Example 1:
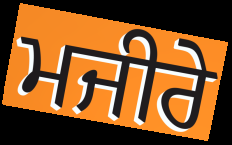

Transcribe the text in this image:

ਮਜੀਰੇ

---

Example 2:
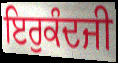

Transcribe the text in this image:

ਇਰੁਕੰਦਜੀ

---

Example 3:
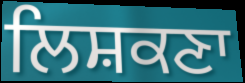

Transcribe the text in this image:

ਲਿਸ਼ਕਣਾ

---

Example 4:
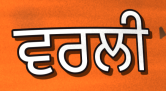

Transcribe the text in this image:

ਵਰਲੀ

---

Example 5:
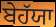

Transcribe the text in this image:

ਬੇਹੱਯਾ